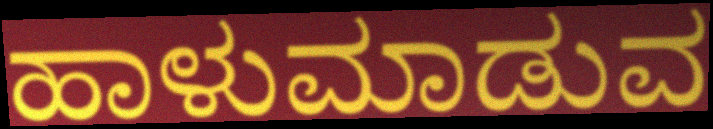
ಹಾಳುಮಾಡುವ